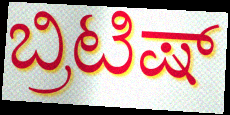
ಬ್ರಿಟಿಷ್